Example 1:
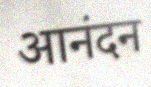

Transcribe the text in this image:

आनंदन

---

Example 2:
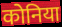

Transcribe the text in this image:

कोनिया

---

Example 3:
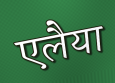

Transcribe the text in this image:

एलैया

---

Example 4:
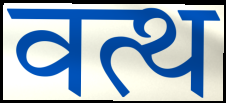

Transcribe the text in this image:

वत्थ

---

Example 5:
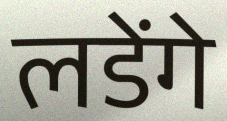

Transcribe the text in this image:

लडेंगे